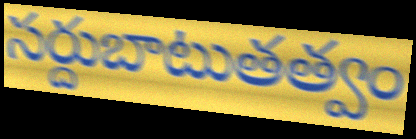
సర్దుబాటుతత్వం